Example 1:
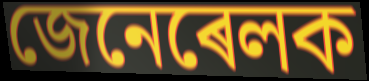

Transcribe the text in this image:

জেনেৰেলক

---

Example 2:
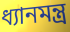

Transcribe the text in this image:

ধ্যানমন্ত্ৰ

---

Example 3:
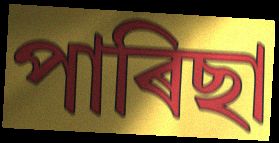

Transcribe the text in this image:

পাৰিছা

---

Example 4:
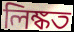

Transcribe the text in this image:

লিঙ্কত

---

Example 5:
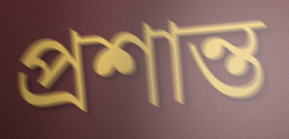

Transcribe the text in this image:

প্ৰশান্ত